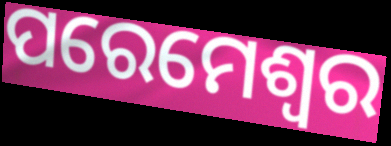
ପରେମେଶ୍ଵର